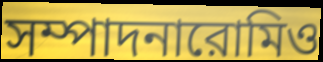
সম্পাদনারোমিও